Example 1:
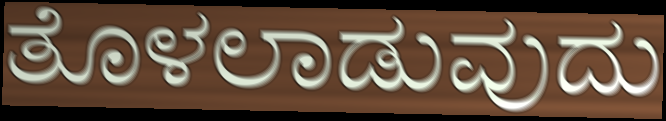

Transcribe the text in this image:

ತೊಳಲಾಡುವುದು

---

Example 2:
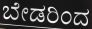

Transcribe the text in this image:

ಬೇಡರಿಂದ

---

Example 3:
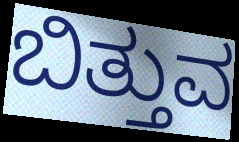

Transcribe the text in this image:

ಬಿತ್ತುವ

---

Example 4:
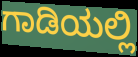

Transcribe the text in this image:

ಗಾಡಿಯಲ್ಲಿ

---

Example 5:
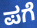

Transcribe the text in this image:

ಪಗೆ